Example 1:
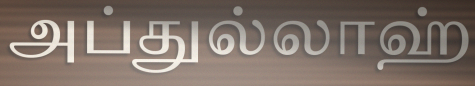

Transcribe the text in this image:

அப்துல்லாஹ்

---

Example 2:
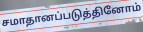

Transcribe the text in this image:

சமாதானப்படுத்தினோம்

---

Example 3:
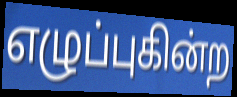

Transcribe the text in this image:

எழுப்புகின்ற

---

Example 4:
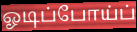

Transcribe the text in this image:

ஓடிப்போய்ப்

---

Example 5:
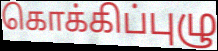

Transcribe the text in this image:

கொக்கிப்புழு